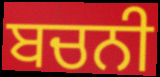
ਬਚਨੀ